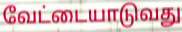
வேட்டையாடுவது